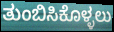
ತುಂಬಿಸಿಕೊಳ್ಳಲು